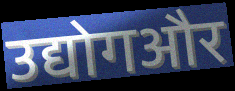
उद्योगऔर